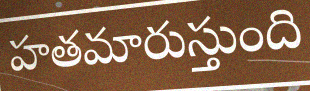
హతమారుస్తుంది